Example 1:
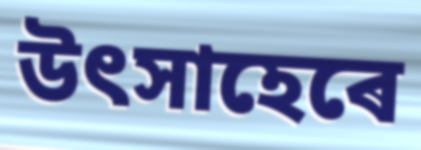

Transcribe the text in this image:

উৎসাহেৰে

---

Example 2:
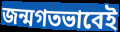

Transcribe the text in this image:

জন্মগতভাবেই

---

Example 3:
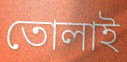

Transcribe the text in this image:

তোলাই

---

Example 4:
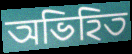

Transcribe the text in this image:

অভিহিত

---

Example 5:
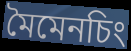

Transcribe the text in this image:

মৈমেনচিং